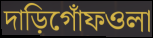
দাড়িগোঁফওলা